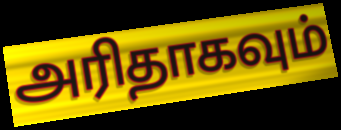
அரிதாகவும்